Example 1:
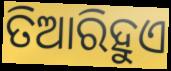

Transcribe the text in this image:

ତିଆରିହୁଏ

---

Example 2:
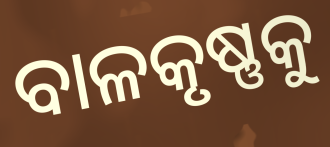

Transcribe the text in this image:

ବାଳକୃଷ୍ଣକୁ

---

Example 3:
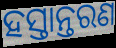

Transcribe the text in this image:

ହସ୍ତାନ୍ତରଣ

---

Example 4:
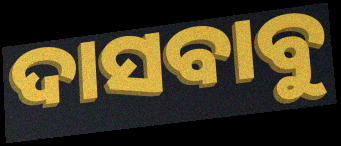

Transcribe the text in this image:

ଦାସବାବୁ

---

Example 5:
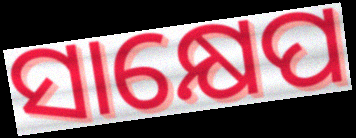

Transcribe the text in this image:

ସାକ୍ଷେପ